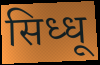
सिध्धू